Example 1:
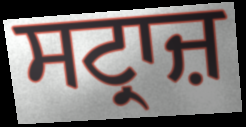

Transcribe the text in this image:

ਸਟ੍ਰਾਜ਼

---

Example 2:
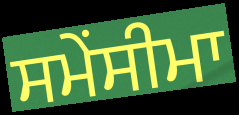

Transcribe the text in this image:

ਸਮੇਂਸੀਮਾ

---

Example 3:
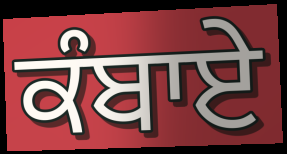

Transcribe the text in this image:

ਕੰਬਾਏ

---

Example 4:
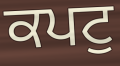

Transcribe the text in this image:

ਕਪਟੁ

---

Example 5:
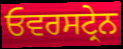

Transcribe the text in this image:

ਓਵਰਸਟ੍ਰੇਨ